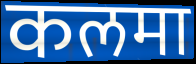
कलमा